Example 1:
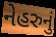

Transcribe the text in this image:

નેહરુનું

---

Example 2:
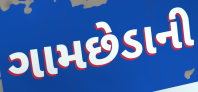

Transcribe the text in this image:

ગામછેડાની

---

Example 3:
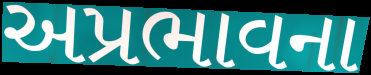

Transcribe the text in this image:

અપ્રભાવના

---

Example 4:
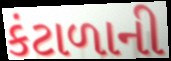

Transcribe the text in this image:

કંટાળાની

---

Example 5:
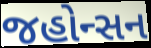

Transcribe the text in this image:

જહોન્સન